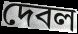
দেবল